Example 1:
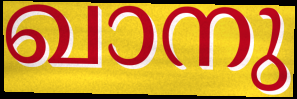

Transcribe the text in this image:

ഖാനു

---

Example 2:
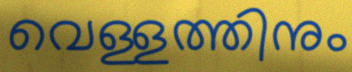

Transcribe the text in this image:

വെള്ളത്തിനും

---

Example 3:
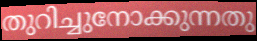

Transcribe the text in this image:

തുറിച്ചുനോക്കുന്നതു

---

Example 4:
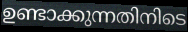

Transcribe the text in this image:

ഉണ്ടാക്കുന്നതിനിടെ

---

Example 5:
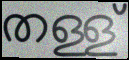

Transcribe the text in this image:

തള്ള്